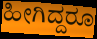
ಹೀಗಿದ್ದರೂ